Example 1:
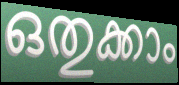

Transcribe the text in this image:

ഒതുക്കാം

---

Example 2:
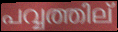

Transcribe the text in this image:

പവ്വത്തില്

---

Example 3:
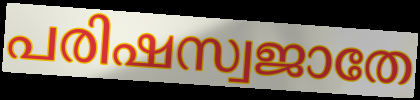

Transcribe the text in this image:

പരിഷസ്വജാതേ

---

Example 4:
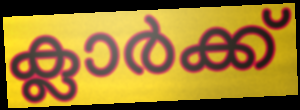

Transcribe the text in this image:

ക്ലാർക്ക്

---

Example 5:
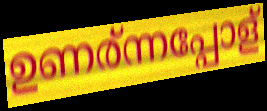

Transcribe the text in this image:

ഉണര്ന്നപ്പോള്